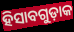
ହିସାବଗୁଡ଼ାକ